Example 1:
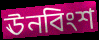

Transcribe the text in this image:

ঊনবিংশ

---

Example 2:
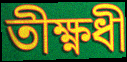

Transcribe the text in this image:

তীক্ষ্ণধী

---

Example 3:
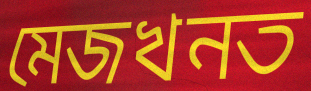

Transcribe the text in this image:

মেজখনত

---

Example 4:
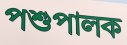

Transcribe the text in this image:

পশুপালক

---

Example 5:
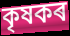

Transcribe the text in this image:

কৃষকৰ